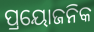
ପ୍ରୟୋଜନିକ